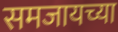
समजायच्या